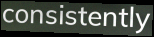
consistently